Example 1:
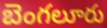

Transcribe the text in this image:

బెంగలూరు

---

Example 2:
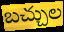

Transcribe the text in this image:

బచ్చుల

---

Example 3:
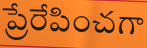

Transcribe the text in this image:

ప్రేరేపించగా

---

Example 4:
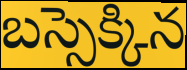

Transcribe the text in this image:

బస్సెక్కిన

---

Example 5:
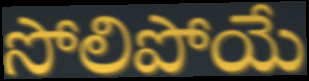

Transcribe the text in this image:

సోలిపోయే